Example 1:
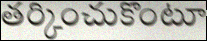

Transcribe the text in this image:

తర్కించుకొంటూ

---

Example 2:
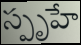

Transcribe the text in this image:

స్పృహే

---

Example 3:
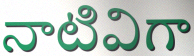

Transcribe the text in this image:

నాటివిగా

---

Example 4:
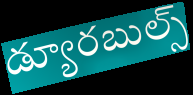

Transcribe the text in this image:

డ్యూరబుల్స్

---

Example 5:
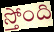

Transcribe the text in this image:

స్తోంది